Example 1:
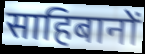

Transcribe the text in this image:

साहिबानों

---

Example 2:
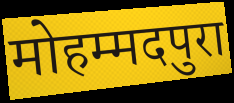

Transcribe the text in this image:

मोहम्मदपुरा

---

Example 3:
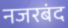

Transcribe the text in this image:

नजरबंद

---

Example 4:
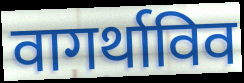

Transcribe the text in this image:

वागर्थाविव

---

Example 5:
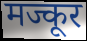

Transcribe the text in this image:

मज्कूर